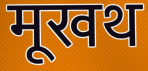
मूखथ